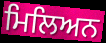
ਮਿਲਿਅਨ